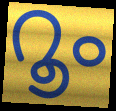
റൂം